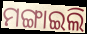
ମଙ୍ଗାଇଲି